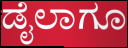
ಡೈಲಾಗೂ